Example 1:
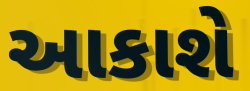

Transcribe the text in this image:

આકાશે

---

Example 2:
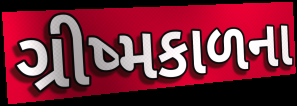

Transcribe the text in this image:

ગ્રીષ્મકાળના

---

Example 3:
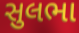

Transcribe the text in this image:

સુલભા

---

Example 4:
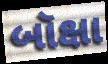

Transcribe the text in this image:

બૉક્ષા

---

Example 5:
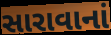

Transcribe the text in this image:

સારાવાનાં